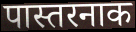
पास्तरनाक